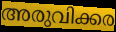
അരുവിക്കര